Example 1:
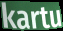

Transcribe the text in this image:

kartu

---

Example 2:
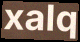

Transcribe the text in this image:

xalq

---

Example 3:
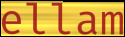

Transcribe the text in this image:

ellam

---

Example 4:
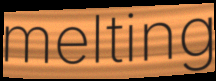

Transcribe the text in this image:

melting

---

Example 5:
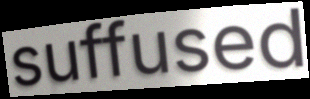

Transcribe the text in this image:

suffused